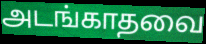
அடங்காதவை